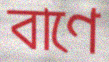
বাণে